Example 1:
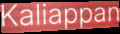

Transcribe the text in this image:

Kaliappan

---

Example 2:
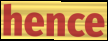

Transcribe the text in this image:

hence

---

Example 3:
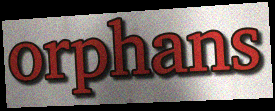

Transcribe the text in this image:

orphans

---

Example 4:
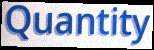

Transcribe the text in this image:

Quantity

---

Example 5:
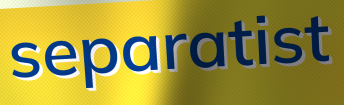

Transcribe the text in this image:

separatist